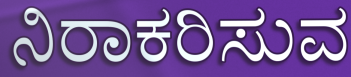
ನಿರಾಕರಿಸುವ